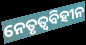
ନେତୃତ୍ୱବିହୀନ